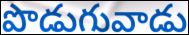
పొడుగువాడు